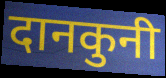
दानकुनी